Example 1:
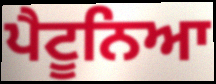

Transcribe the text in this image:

ਪੈਟੂਨਿਆ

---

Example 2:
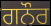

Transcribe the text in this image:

ਗਨੌਰ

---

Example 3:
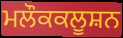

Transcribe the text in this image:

ਮਲੌਕਕਲੂਸ਼ਨ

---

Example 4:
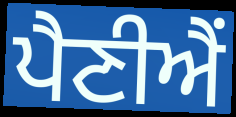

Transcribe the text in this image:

ਪੈਣੀਐਂ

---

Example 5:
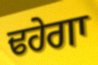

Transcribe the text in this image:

ਢਹੇਗਾ